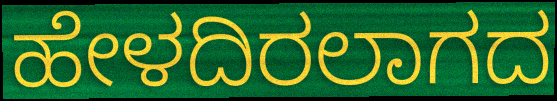
ಹೇಳದಿರಲಾಗದ